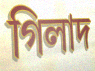
গিলাদ